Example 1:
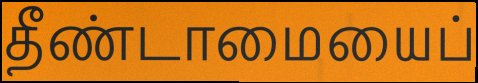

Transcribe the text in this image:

தீண்டாமையைப்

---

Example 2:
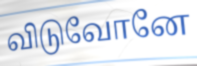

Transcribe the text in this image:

விடுவோனே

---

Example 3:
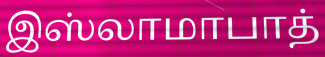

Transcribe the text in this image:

இஸ்லாமாபாத்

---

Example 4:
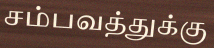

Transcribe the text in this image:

சம்பவத்துக்கு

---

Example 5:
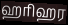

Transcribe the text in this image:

ஹரிஹர